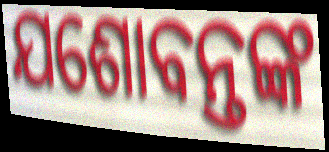
ଯଶୋବନ୍ତଙ୍କ